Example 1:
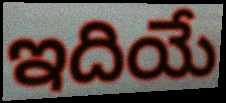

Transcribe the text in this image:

ఇదియే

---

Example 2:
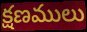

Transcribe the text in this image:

క్షణములు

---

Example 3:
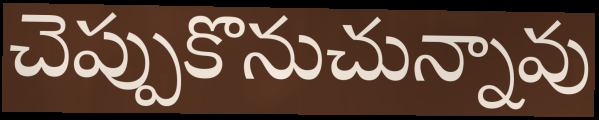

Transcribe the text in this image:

చెప్పుకొనుచున్నావు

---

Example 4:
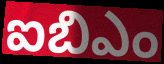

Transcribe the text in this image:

ఐబిఎం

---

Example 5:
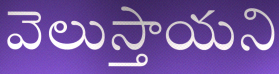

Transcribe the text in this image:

వెలుస్తాయని